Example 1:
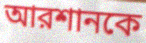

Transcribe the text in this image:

আরশানকে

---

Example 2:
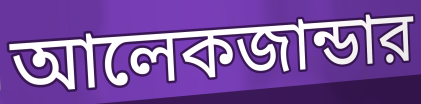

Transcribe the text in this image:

আলেকজান্ডার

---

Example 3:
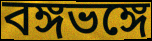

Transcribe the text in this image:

বঙ্গভঙ্গে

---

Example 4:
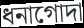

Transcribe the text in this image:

ধনাগোদা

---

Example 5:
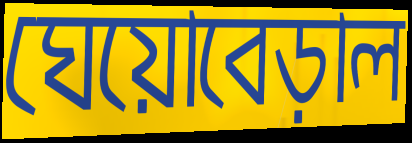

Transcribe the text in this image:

ঘেয়োবেড়াল